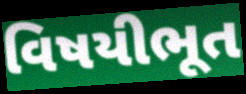
વિષયીભૂત